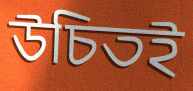
উচিতই